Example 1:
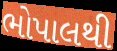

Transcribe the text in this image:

ભોપાલથી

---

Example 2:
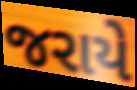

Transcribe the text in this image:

જરાયે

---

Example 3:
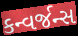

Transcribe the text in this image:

કન્વર્જન્સ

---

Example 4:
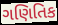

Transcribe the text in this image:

ગણિતિક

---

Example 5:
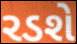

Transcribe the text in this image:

રડશે